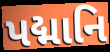
પદ્માનિ